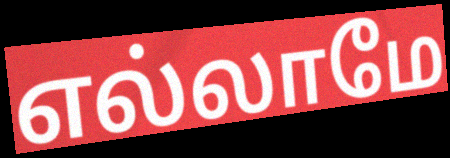
எல்லாமே